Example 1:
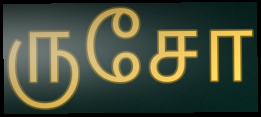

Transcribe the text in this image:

ருசோ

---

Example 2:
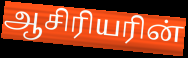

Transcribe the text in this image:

ஆசிரியரின்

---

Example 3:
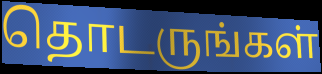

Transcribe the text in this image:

தொடருங்கள்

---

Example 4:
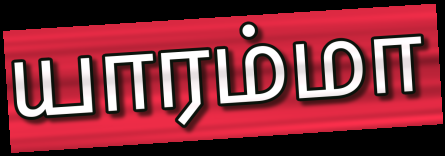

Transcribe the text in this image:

யாரம்மா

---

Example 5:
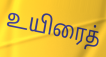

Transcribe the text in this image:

உயிரைத்